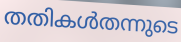
തതികൾതന്നുടെ